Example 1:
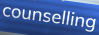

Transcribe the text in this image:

counselling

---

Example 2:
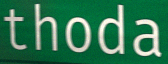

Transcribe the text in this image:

thoda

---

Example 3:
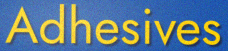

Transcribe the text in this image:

Adhesives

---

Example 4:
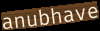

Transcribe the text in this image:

anubhave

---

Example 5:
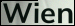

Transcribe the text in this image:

Wien